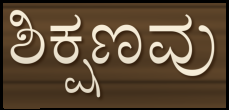
ಶಿಕ್ಷಣವು